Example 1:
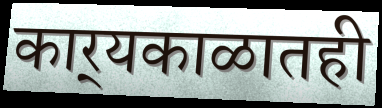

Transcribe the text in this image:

कार्यकाळातही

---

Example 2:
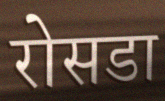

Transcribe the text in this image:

रोसडा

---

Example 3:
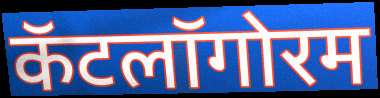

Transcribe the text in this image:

कॅटलॉगोरम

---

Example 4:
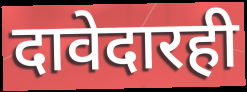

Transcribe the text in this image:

दावेदारही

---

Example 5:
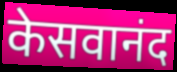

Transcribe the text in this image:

केसवानंद